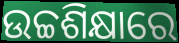
ଉଚ୍ଚଶିକ୍ଷାରେ